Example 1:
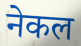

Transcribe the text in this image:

नेकल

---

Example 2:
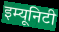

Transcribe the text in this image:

इम्‍यूनिटी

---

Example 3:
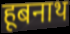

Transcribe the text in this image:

हूबनाथ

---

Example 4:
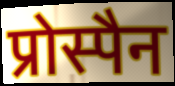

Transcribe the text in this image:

प्रोस्पैन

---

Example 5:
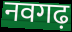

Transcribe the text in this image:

नवगढ़